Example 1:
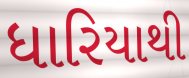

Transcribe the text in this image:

ધારિયાથી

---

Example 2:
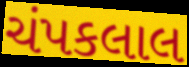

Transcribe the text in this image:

ચંપકલાલ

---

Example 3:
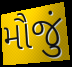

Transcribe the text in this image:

મૌજું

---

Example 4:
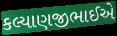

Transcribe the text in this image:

કલ્યાણજીભાઈએ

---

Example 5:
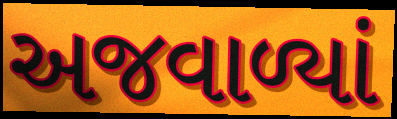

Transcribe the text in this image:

અજવાળ્યાં